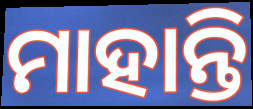
ମାହାନ୍ତି